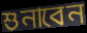
শুনাবেন